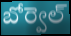
బోర్వెల్